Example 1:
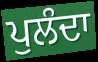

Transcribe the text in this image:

ਪੁਲੰਦਾ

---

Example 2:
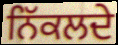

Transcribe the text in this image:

ਨਿੱਕਲਦੇ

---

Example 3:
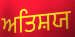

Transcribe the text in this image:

ਅਤਿਸ਼ਯ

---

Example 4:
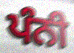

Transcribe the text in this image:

ਪੰਨੀ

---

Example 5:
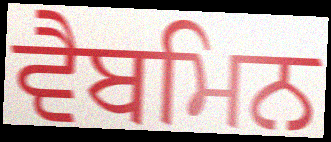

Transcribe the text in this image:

ਵੈਬਮਿਨ